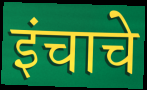
इंचाचे